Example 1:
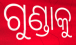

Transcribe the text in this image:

ଗୁଣ୍ଡାକୁ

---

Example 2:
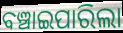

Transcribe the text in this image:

ବଞ୍ଚାଇପାରିଲା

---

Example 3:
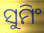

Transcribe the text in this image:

ସୁମିଂ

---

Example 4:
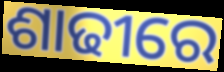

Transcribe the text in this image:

ଶାଢୀରେ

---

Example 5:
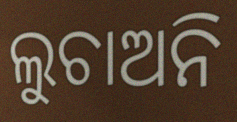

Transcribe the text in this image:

ଲୁଚାଅନି